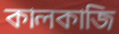
কালকাজি